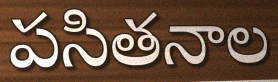
పసితనాల